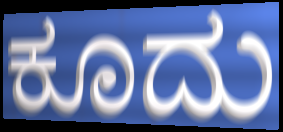
ಕೂದು